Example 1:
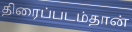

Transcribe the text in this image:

திரைப்படம்தான்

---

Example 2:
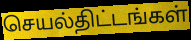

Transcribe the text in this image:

செயல்திட்டங்கள்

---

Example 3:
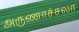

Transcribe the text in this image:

அருணாச்சலா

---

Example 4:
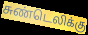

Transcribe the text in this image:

சுண்டெலிக்கு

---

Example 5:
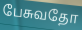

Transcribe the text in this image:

பேசுவதோ